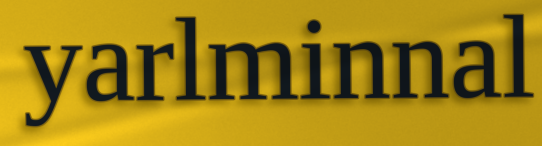
yarlminnal